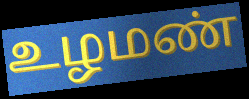
உழமண்